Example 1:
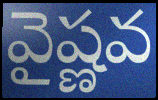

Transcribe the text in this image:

వైష్ణవ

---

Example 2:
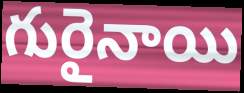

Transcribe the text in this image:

గురైనాయి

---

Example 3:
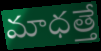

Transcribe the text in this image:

మాధత్తే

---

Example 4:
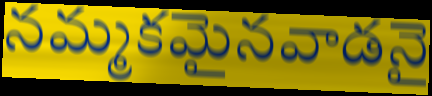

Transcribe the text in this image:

నమ్మకమైనవాడనై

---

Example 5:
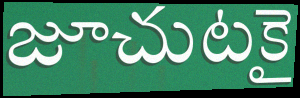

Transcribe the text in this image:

జూచుటకై